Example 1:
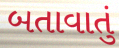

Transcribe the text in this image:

બતાવાતું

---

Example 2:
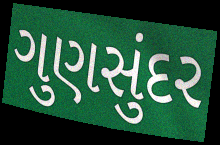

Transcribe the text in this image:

ગુણસુંદર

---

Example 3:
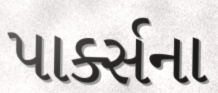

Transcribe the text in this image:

પાર્ક્સના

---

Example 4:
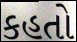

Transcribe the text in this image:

કહતો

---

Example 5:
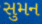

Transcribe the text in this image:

સુમન